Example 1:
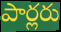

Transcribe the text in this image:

పార్లరు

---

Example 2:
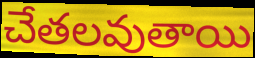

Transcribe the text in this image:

చేతలవుతాయి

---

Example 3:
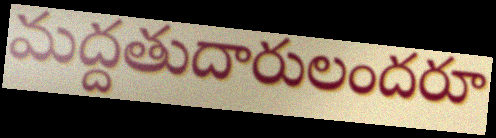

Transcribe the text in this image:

మద్దతుదారులందరూ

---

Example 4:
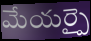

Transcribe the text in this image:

మేయర్పై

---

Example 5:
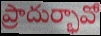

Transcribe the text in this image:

ప్రాదుర్భావో